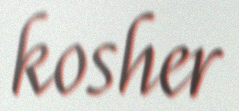
kosher